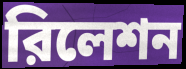
রিলেশন